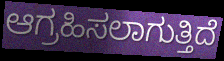
ಆಗ್ರಹಿಸಲಾಗುತ್ತಿದೆ